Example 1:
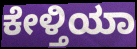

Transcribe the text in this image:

ಕೇಳ್ತಿಯಾ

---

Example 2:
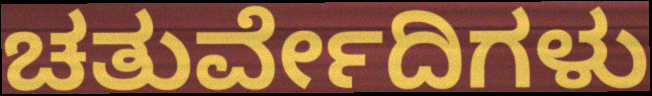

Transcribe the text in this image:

ಚತುರ್ವೇದಿಗಳು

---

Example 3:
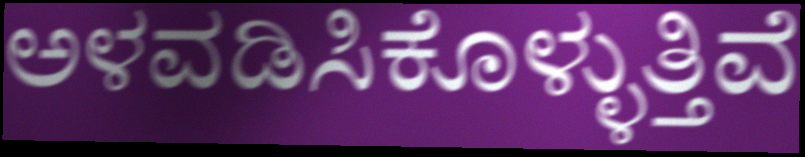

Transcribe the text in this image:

ಅಳವಡಿಸಿಕೊಳ್ಳುತ್ತಿವೆ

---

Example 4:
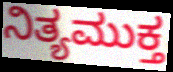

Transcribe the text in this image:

ನಿತ್ಯಮುಕ್ತ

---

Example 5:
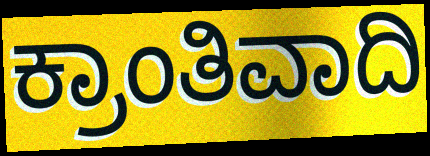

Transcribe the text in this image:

ಕ್ರಾಂತಿವಾದಿ